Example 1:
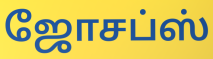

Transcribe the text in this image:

ஜோசப்ஸ்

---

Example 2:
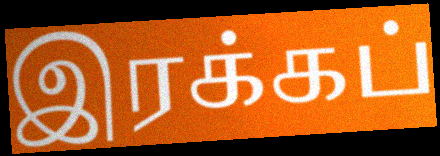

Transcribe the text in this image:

இரக்கப்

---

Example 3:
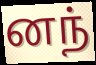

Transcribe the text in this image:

னந்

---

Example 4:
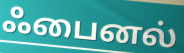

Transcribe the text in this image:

ஃபைனல்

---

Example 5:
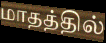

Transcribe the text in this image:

மாதத்தில்